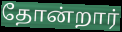
தோன்றார்